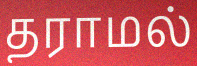
தராமல்